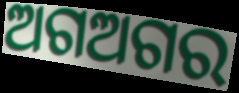
ଅଗଅଗର